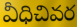
వీధిచివర